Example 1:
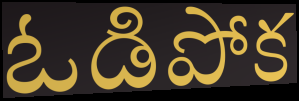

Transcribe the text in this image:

ఓడిపోక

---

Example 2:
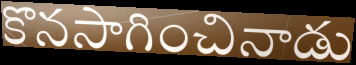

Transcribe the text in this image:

కొనసాగించినాడు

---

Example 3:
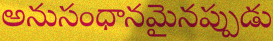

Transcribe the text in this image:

అనుసంధానమైనప్పుడు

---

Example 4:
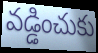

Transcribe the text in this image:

వడ్డించుకు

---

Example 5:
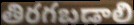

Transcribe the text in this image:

తిరగబడాలి